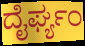
ದೈರ್ಘ್ಯಂ